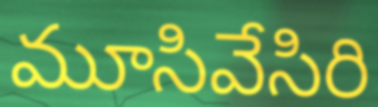
మూసివేసిరి